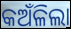
କଅଁଳିଲା